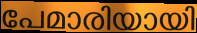
പേമാരിയായി